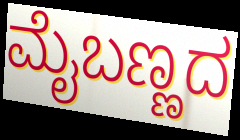
ಮೈಬಣ್ಣದ